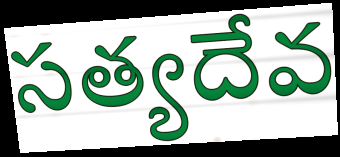
సత్యదేవ